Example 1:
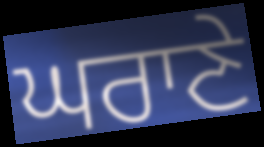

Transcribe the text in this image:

ਘਰਾਣੇ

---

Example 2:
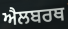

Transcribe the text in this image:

ਐਲਬਰਥ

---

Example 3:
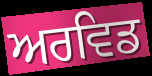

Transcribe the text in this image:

ਅਰਵਿਡ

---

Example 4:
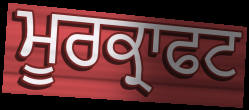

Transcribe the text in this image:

ਮੂਰਕ੍ਰਾਫਟ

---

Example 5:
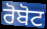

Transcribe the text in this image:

ਰੋਬੋਟ